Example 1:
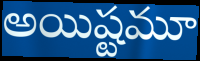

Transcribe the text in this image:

అయిష్టమూ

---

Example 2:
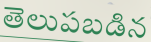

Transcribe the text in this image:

తెలుపబడిన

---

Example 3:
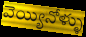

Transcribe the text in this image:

వెయ్యినోళ్ళు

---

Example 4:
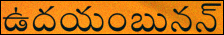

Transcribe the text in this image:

ఉదయంబునన్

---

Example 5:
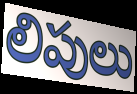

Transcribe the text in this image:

లిపులు